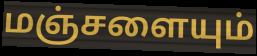
மஞ்சளையும்